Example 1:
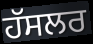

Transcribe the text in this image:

ਹੱਸਲਰ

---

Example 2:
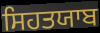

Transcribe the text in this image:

ਸਿਹਤਯਾਬ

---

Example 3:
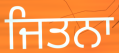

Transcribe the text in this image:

ਜਿਤਨਾ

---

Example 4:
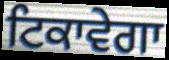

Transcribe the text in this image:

ਟਿਕਾਵੇਗਾ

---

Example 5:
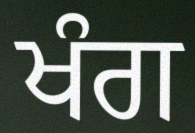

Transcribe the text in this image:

ਖੰਗ